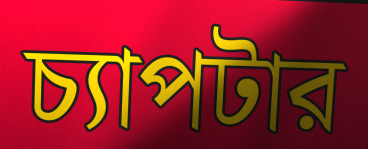
চ্যাপটার